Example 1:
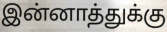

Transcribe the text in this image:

இன்னாத்துக்கு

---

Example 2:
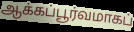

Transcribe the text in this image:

ஆக்கப்பூர்வமாகப்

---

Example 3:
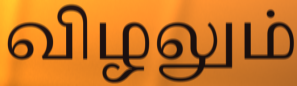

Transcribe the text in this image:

விழலும்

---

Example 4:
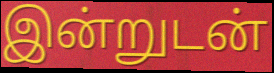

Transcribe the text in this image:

இன்றுடன்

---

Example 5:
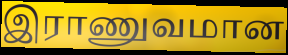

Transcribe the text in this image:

இராணுவமான